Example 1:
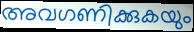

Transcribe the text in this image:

അവഗണിക്കുകയും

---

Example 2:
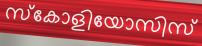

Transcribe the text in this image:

സ്കോളിയോസിസ്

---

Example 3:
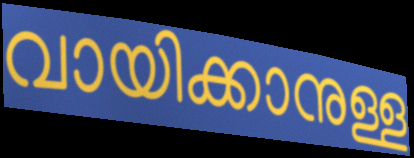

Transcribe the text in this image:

വായിക്കാനുള്ള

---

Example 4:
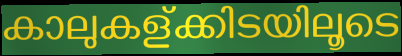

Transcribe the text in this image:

കാലുകള്ക്കിടയിലൂടെ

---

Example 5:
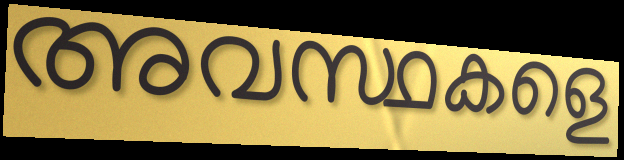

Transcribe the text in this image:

അവസ്ഥകളെ